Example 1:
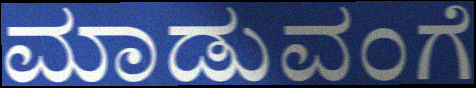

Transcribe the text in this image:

ಮಾಡುವಂಗೆ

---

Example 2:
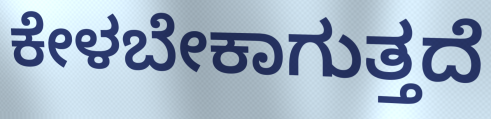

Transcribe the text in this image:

ಕೇಳಬೇಕಾಗುತ್ತದೆ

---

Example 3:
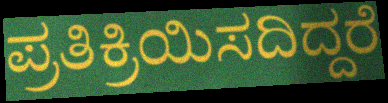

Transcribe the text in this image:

ಪ್ರತಿಕ್ರಿಯಿಸದಿದ್ದರೆ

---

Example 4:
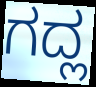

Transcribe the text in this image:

ಗದ್ಲ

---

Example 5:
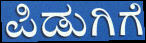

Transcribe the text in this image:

ಪಿಡುಗಿಗೆ